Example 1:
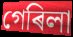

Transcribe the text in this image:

গেৰিলা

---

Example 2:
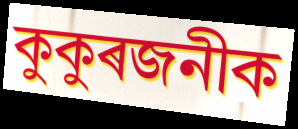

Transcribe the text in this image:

কুকুৰজনীক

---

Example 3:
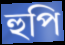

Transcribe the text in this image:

হুপি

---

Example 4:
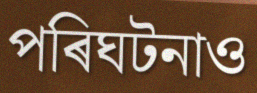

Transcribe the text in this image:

পৰিঘটনাও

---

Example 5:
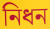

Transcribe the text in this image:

নিধন